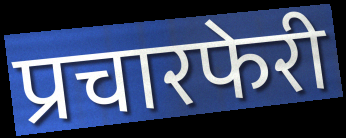
प्रचारफेरी